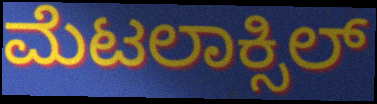
ಮೆಟಲಾಕ್ಸಿಲ್